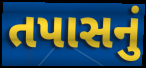
તપાસનું